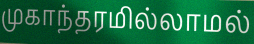
முகாந்தரமில்லாமல்